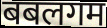
बबलगम